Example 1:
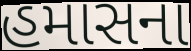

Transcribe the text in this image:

હમાસના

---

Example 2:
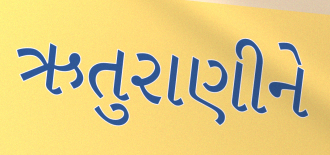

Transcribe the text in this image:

ઋતુરાણીને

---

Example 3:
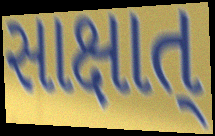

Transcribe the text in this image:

સાક્ષાત્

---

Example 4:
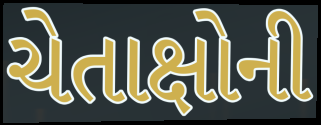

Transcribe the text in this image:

ચેતાક્ષોની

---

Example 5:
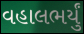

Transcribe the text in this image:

વહાલભર્યું